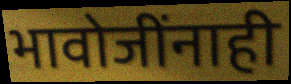
भावोजींनाही